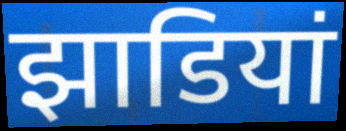
झाडियां